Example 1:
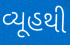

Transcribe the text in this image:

વ્યૂહથી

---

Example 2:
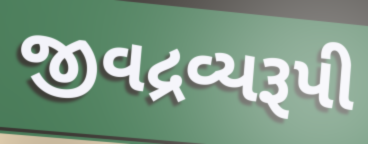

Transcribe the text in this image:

જીવદ્રવ્યરૂપી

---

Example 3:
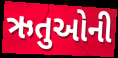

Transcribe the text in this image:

ઋતુઓની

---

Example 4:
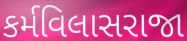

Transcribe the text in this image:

કર્મવિલાસરાજા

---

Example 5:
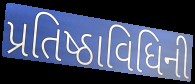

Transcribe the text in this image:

પ્રતિષ્ઠાવિધિની